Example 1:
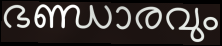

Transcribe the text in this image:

ഭണ്ഡാരവും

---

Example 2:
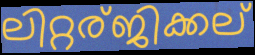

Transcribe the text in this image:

ലിറ്റര്ജിക്കല്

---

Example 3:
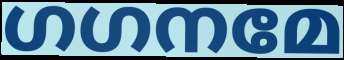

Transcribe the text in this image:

ഗഗനമേ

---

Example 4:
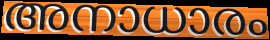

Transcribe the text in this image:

അനാധാരം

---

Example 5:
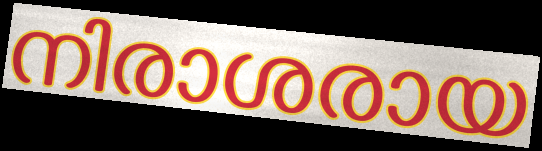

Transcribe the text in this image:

നിരാശരായ